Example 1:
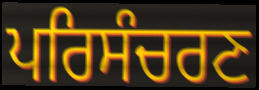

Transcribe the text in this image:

ਪਰਿਸੰਚਰਣ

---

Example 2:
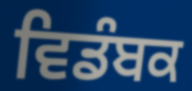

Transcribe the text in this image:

ਵਿਡੰਬਕ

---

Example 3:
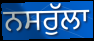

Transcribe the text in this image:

ਨਸਰੁੱਲਾ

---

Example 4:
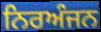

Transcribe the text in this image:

ਨਿਰਅੰਜਨ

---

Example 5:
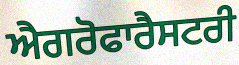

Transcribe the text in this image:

ਐਗਰੋਫਾਰੈਸਟਰੀ